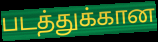
படத்துக்கான